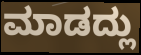
ಮಾಡದ್ಲು